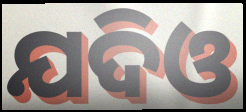
ଯଦିଓ